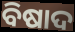
ବିଷାଦ